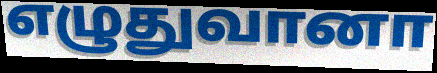
எழுதுவானா